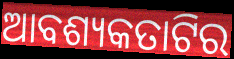
ଆବଶ୍ୟକତାଟିର